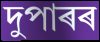
দুপাৰৰ